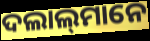
ଦଲାଲ୍‍ମାନେ